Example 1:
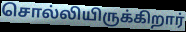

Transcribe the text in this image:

சொல்லியிருக்கிறார்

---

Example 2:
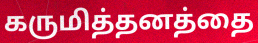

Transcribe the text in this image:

கருமித்தனத்தை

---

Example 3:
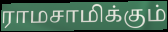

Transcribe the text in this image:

ராமசாமிக்கும்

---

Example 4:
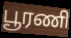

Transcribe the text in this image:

பூரணி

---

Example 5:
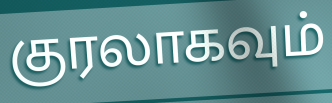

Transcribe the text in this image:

குரலாகவும்